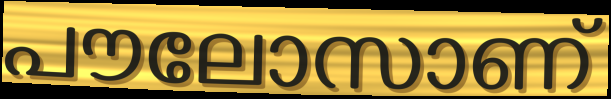
പൗലോസാണ്